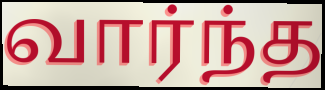
வார்ந்த